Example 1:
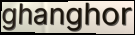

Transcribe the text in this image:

ghanghor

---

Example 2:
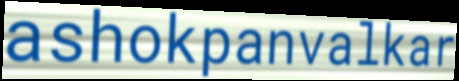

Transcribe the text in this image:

ashokpanvalkar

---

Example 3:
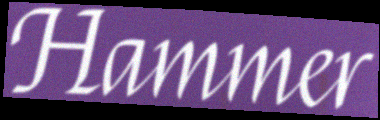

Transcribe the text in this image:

Hammer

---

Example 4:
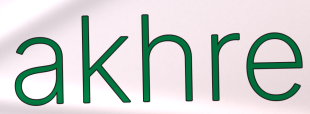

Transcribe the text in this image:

akhre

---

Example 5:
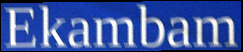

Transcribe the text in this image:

Ekambam